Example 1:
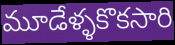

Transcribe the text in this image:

మూడేళ్ళకొకసారి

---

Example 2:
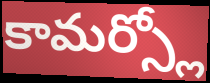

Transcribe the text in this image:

కామర్స్లో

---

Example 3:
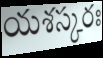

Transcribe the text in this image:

యశస్కరః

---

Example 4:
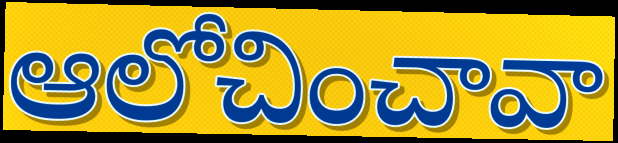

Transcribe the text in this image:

ఆలోచించావా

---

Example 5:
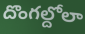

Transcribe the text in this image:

దొంగల్దోలా